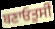
ਬਣਾਓਤੁਸੀਂ